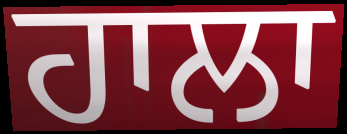
ਹਾਲਾ